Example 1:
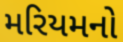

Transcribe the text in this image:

મરિયમનો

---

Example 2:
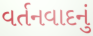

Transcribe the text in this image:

વર્તનવાદનું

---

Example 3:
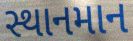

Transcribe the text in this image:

સ્થાનમાન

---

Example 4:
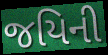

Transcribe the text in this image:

જયિની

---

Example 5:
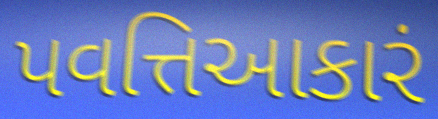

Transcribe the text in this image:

પવત્તિઆકારં